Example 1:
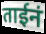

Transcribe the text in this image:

ताईनं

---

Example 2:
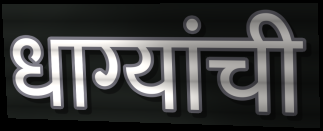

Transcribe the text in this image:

धाग्यांची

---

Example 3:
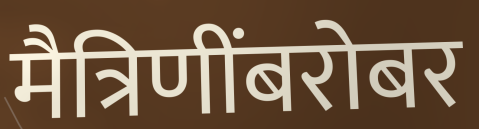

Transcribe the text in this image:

मैत्रिणींबरोबर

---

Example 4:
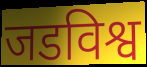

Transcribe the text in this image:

जडविश्व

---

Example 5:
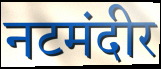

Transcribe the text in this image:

नटमंदीर